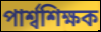
পার্শ্বশিক্ষক